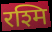
रश्मि